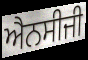
ਐਨਸੀਜੀ